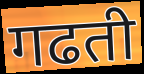
गढती